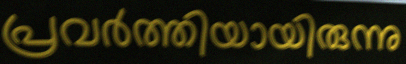
പ്രവർത്തിയായിരുന്നു